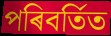
পৰিবৰ্তিত